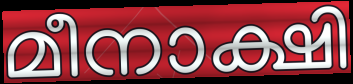
മീനാക്ഷി